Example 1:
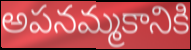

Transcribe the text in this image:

అపనమ్మకానికి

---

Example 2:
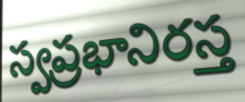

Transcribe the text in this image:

స్వప్రభానిరస్త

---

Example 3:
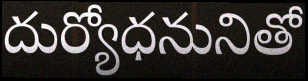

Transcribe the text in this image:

దుర్యోధనునితో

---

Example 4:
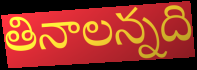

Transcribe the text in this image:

తినాలన్నది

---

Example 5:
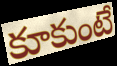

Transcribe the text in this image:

కూకుంటే